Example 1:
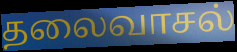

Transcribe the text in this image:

தலைவாசல்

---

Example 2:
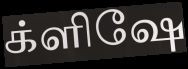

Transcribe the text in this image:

க்ளிஷே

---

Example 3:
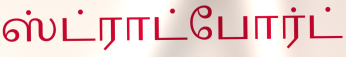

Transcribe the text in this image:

ஸ்ட்ராட்போர்ட்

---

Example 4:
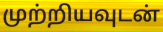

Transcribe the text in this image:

முற்றியவுடன்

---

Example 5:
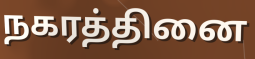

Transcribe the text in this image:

நகரத்தினை